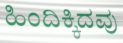
ಹಿಂದಿಕ್ಕಿದವು